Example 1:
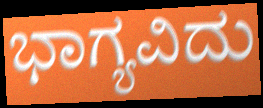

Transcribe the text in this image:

ಭಾಗ್ಯವಿದು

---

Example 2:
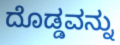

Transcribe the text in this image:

ದೊಡ್ಡವನ್ನು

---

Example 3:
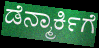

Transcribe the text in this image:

ಡೆನ್ಮಾರ್ಕಿಗೆ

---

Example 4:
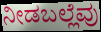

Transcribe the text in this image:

ನೀಡಬಲ್ಲೆವು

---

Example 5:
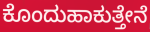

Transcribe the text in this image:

ಕೊಂದುಹಾಕುತ್ತೇನೆ